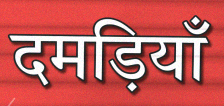
दमड़ियाँ